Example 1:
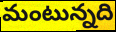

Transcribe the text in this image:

మంటున్నది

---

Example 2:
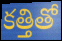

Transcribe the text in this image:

కత్తితో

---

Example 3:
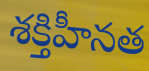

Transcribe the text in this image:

శక్తిహీనత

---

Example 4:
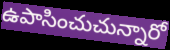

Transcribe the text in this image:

ఉపాసించుచున్నారో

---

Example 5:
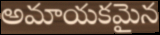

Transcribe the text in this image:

అమాయకమైన